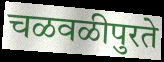
चळवळीपुरते